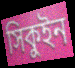
সিকুইন